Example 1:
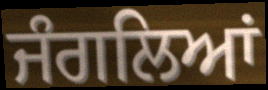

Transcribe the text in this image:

ਜੰਗਲਿਆਂ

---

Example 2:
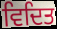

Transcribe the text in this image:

ਵਿਦਿਤ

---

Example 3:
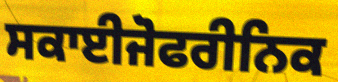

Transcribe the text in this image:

ਸਕਾਈਜੋਫਰੀਨਿਕ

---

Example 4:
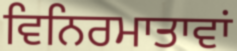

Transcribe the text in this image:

ਵਿਨਿਰਮਾਤਾਵਾਂ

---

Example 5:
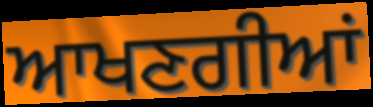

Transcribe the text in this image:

ਆਖਣਗੀਆਂ